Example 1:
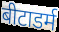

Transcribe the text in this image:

बीटाडर्म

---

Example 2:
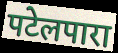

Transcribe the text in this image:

पटेलपारा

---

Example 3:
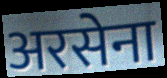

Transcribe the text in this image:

अरसेना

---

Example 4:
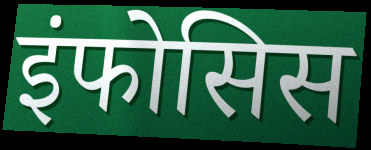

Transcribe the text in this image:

इंफोसिस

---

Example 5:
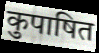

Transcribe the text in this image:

कुपाषित